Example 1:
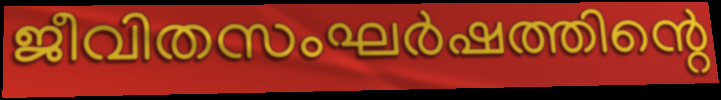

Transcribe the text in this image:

ജീവിതസംഘർഷത്തിന്റെ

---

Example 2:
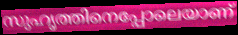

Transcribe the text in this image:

സുഹൃത്തിനെപ്പോലെയാണ്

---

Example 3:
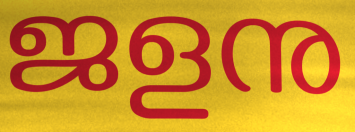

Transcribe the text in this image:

ജളനു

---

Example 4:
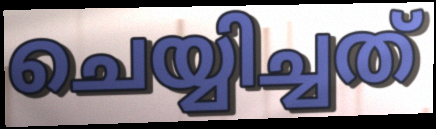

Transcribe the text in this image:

ചെയ്യിച്ചത്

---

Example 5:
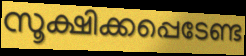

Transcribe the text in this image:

സൂക്ഷിക്കപ്പെടേണ്ട